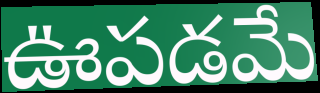
ఊపడమే